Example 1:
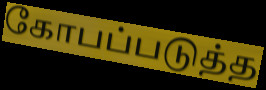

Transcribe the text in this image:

கோபப்படுத்த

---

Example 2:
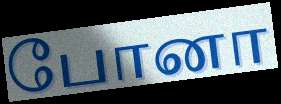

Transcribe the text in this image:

போனா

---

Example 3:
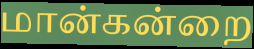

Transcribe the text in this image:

மான்கன்றை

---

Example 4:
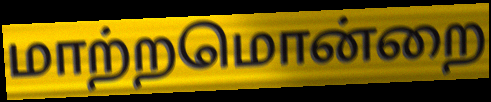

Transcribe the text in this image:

மாற்றமொன்றை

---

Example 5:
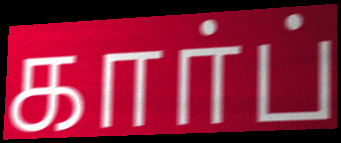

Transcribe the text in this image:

கார்ப்